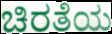
ಚಿರತೆಯ